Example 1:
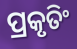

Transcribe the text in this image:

ପ୍ରକୃତିଂ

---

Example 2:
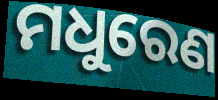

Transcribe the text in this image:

ମଧୁରେଣ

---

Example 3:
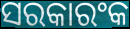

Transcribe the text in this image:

ସରକାରଂକ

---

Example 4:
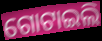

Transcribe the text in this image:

ଗୋଟାଇଲି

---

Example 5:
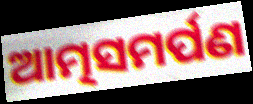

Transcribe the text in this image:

ଆତ୍ମସମର୍ପଣ